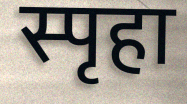
स्पृहा